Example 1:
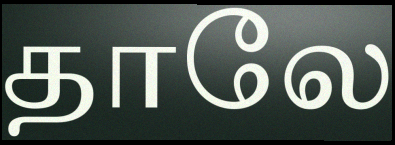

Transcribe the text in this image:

தாலே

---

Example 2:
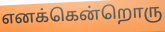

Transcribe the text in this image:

எனக்கென்றொரு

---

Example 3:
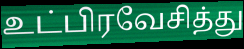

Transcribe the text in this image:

உட்பிரவேசித்து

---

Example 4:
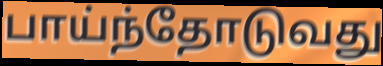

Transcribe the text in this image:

பாய்ந்தோடுவது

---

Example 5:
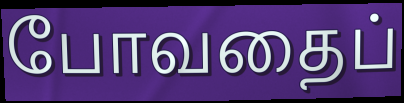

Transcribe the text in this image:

போவதைப்